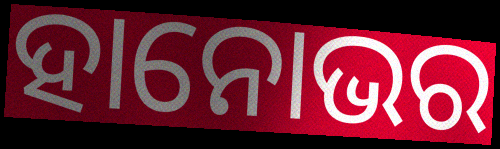
ହାନୋଭର